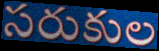
సరుకుల